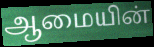
ஆமையின்